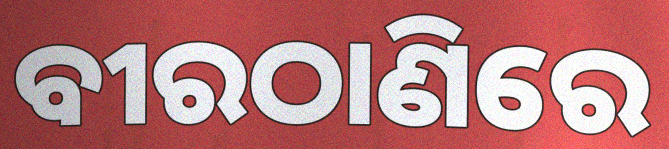
ବୀରଠାଣିରେ